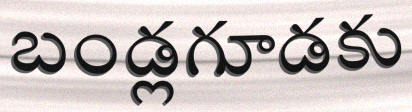
బండ్లగూడకు